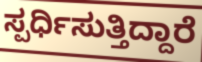
ಸ್ಪರ್ಧಿಸುತ್ತಿದ್ದಾರೆ